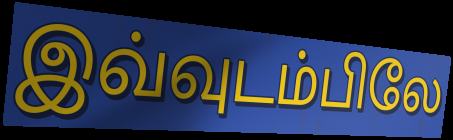
இவ்வுடம்பிலே